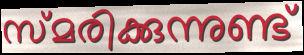
സ്മരിക്കുന്നുണ്ട്